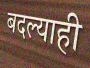
बदल्याही